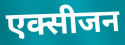
एक्सीजन